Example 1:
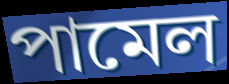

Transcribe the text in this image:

পামেল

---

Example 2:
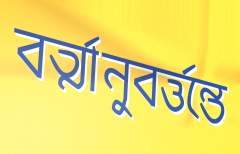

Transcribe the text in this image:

বর্ত্মানুবর্ত্তন্তে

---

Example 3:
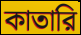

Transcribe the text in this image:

কাতারি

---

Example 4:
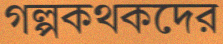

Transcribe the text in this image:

গল্পকথকদের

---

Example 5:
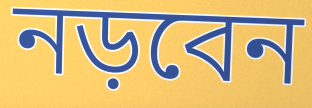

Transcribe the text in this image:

নড়বেন